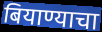
बियाण्याचा